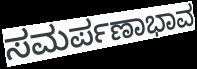
ಸಮರ್ಪಣಾಭಾವ